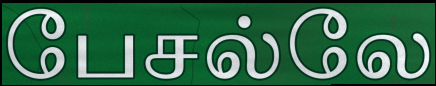
பேசல்லே